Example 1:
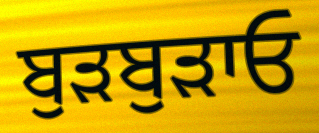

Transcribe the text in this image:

ਬੁੜਬੁੜਾਓ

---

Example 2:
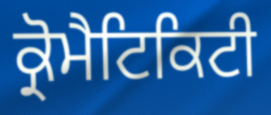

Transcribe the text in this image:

ਕ੍ਰੋਮੈਟਿਕਿਟੀ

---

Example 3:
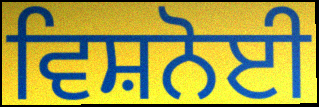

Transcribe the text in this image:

ਵਿਸ਼ਨੋਈ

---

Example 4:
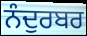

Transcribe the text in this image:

ਨੰਦੁਰਬਰ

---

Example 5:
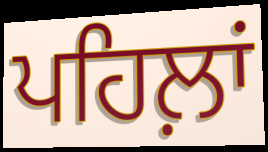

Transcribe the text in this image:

ਪਹਿਲ਼ਾਂ